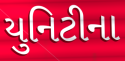
યુનિટીના